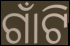
ଗାଁଟି